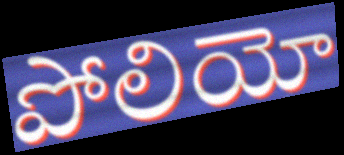
పోలియో